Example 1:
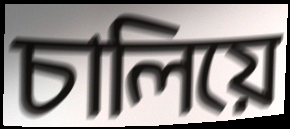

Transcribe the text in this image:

চালিয়ে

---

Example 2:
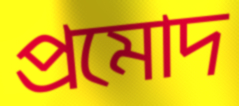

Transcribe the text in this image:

প্ৰমোদ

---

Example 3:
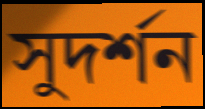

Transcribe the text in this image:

সুদৰ্শন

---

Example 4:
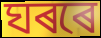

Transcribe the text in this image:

ঘৰৰে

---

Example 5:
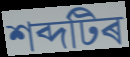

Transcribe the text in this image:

শব্দটিৰ